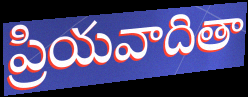
ప్రియవాదితా